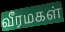
வீரமகள்